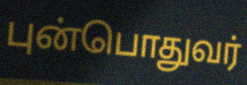
புன்பொதுவர்